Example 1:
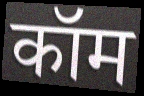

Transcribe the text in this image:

कॉम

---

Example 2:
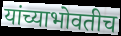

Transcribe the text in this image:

यांच्याभोवतीच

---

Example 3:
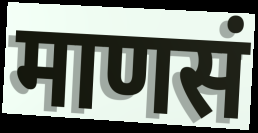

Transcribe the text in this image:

माणसं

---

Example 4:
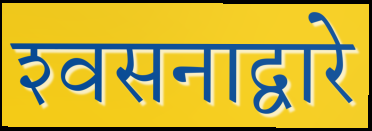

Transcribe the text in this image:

श्वसनाद्वारे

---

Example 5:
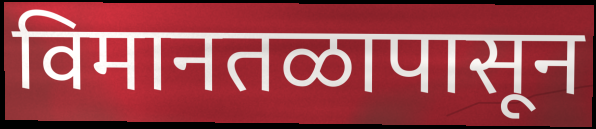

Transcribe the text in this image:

विमानतळापासून